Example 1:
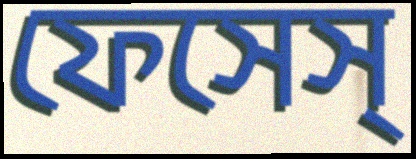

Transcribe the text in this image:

ফেসেস্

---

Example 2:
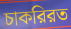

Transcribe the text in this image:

চাকরিরত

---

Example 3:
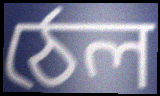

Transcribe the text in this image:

ঠেল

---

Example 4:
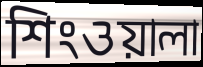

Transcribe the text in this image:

শিংওয়ালা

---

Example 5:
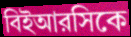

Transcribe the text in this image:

বিইআরসিকে